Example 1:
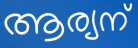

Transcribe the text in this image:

ആര്യന്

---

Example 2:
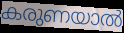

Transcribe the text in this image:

കരുണയാൽ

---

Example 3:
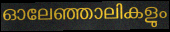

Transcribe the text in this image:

ഓലേഞ്ഞാലികളും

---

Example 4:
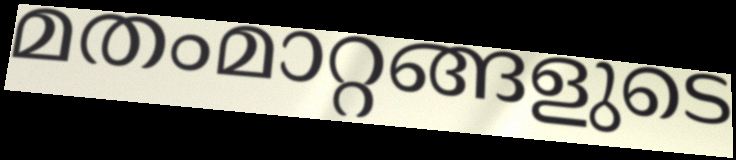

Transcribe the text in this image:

മതംമാറ്റങ്ങളുടെ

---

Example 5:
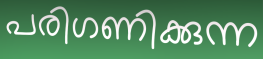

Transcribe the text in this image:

പരിഗണിക്കുന്ന